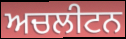
ਅਚਲੀਟਨ